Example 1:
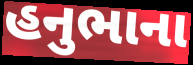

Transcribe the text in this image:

હનુભાના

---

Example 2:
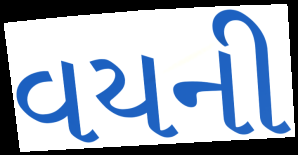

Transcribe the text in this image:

વયની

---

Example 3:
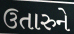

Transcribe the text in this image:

ઉતારુને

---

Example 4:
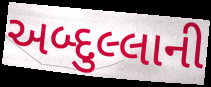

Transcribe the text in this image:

અબ્દુલ્લાની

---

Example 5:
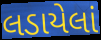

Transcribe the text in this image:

લડાયેલાં